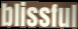
blissful